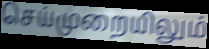
செய்முறையிலும்